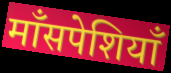
माँसपेशियाँ